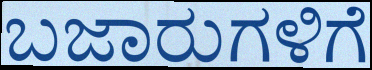
ಬಜಾರುಗಳಿಗೆ